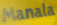
Manala